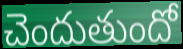
చెందుతుందో